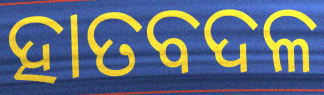
ହାତବଦଳ